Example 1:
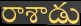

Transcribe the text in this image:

రాశాడు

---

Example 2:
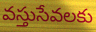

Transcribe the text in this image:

వస్తుసేవలకు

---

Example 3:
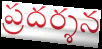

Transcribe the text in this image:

ప్రదర్శన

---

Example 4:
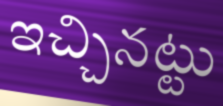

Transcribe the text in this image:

ఇచ్చినట్టు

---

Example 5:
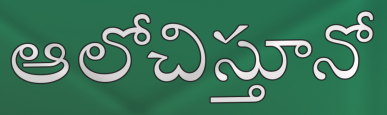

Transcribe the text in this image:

ఆలోచిస్తూనో